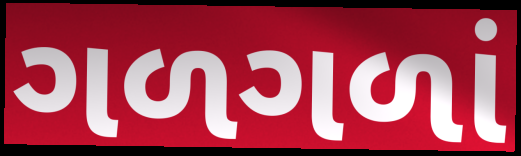
ગળગળાં